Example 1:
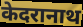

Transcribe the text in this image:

केदरानाथ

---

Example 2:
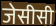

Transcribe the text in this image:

जेसीसी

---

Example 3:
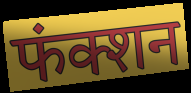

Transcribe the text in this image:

फंक्शन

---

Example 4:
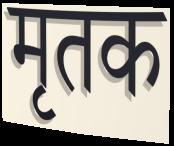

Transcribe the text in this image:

मृतक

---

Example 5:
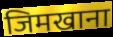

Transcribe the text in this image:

जिमखाना